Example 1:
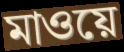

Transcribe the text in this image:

মাওয়ে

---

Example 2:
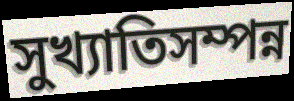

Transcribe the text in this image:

সুখ্যাতিসম্পন্ন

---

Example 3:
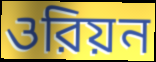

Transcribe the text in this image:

ওরিয়ন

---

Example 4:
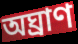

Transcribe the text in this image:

অঘ্রাণ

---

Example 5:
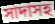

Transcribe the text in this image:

সাদাসহ